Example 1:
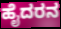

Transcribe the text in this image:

ಹೈದರನ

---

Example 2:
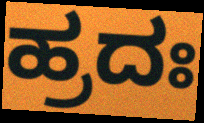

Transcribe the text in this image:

ಹ್ರದಃ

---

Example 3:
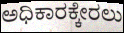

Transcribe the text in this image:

ಅಧಿಕಾರಕ್ಕೇರಲು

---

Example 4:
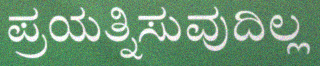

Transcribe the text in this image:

ಪ್ರಯತ್ನಿಸುವುದಿಲ್ಲ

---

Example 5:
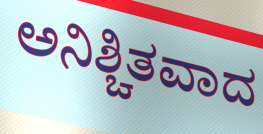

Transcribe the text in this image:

ಅನಿಶ್ಚಿತವಾದ